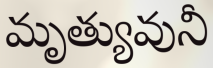
మృత్యువునీ